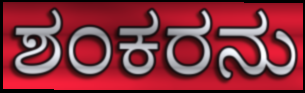
ಶಂಕರನು